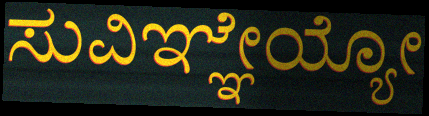
ಸುವಿಞ್ಞೇಯ್ಯೋ